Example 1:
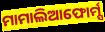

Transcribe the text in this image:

ମାମାଲିଆଫୋର୍ମ୍ସ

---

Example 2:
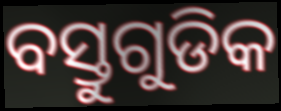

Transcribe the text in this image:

ବସ୍ତୁଗୁଡିକ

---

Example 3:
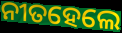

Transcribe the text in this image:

ନୀତହେଲେ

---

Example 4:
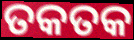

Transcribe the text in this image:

ତକତକ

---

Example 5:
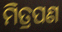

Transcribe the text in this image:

ମିତ୍ରପଣ